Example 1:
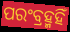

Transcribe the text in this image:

ପରଂବ୍ରହ୍ମହିଁ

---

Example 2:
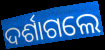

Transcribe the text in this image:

ଦର୍ଶାଗଲେ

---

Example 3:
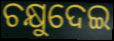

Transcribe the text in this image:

ଚକ୍ଷୁଦେଇ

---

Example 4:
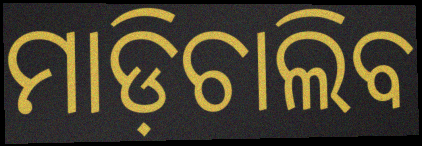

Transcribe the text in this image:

ମାଡ଼ିଚାଲିବ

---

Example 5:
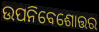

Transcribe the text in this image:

ଉପନିବେଶୋତ୍ତର